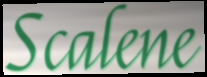
Scalene